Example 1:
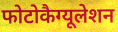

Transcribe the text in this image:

फोटोकैग्यूलेशन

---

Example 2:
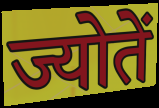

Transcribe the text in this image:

ज्योतें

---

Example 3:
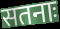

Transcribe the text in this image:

सतनाः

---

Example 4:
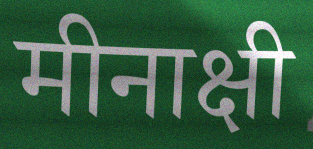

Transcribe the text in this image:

मीनाक्षी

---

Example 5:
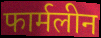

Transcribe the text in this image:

फार्मलीन